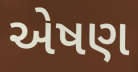
એષણ